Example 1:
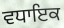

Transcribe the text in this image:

ਵਧਾਇਕ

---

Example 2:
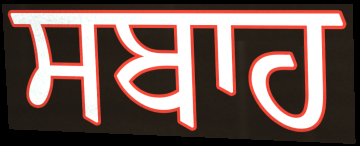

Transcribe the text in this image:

ਸਬਾਹ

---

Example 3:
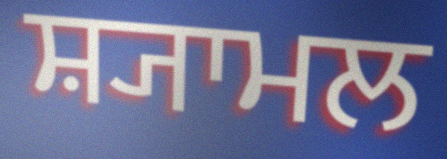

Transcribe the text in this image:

ਸ਼੍ਯਾਮਲ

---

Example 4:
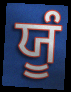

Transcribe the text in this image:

ਯੂੰ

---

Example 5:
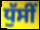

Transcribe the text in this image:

ਧੁੱਸੀਂ